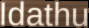
Idathu